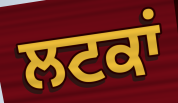
ਲਟਕਾਂ